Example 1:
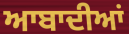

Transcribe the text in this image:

ਆਬਾਦੀਆਂ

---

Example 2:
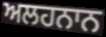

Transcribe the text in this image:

ਅਲਹਨਾਨ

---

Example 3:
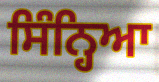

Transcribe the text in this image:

ਸਿੰਨ੍ਹਿਆ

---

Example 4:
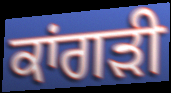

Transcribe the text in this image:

ਕਾਂਗੜੀ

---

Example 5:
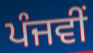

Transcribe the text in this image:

ਪੰਜਵੀਂ